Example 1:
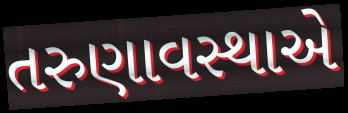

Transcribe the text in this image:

તરુણાવસ્થાએ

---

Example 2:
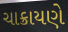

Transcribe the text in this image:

ચાક્રાયણે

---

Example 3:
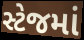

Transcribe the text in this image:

સ્ટેજમાં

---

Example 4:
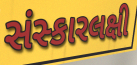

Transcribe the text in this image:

સંસ્કારલક્ષી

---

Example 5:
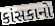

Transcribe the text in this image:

કાંસકાનો